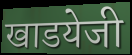
खाडयेजी